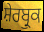
ਸ਼ੇਰਬ੍ਰੁਕ